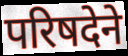
परिषदेने